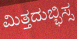
ಮಿತ್ತದುಬ್ಭಿಸ್ಸ